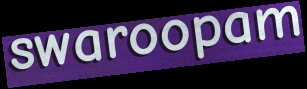
swaroopam